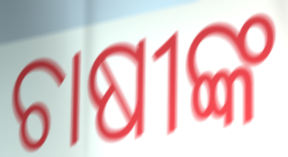
ଚାଷୀଙ୍କ